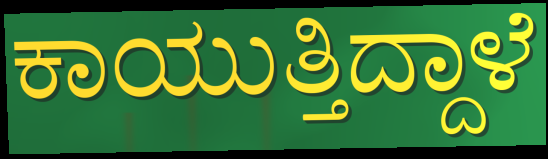
ಕಾಯುತ್ತಿದ್ದಾಳೆ